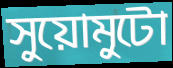
সুয়োমুটো